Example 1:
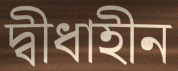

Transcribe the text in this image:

দ্বীধাহীন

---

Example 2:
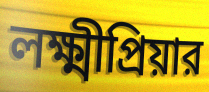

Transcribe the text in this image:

লক্ষ্মীপ্রিয়ার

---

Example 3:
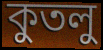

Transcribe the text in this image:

কুতলু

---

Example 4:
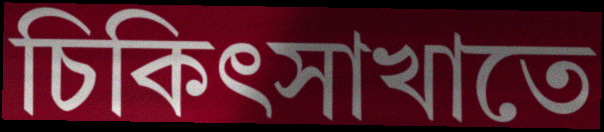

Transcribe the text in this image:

চিকিৎসাখাতে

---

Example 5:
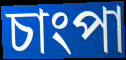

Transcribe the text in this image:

চাংপা